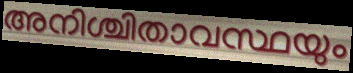
അനിശ്ചിതാവസ്ഥയും